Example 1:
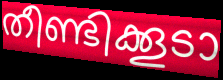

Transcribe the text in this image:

തീണ്ടിക്കൂടാ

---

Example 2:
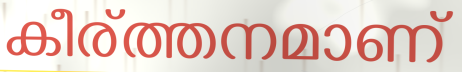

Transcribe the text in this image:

കീര്ത്തനമാണ്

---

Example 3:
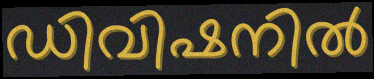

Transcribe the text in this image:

ഡിവിഷനിൽ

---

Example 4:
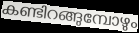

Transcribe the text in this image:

കണ്ടിറങ്ങുമ്പോഴും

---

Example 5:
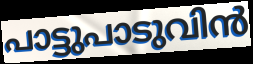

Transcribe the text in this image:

പാട്ടുപാടുവിൻ